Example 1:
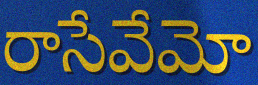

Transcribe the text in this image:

రాసేవేమో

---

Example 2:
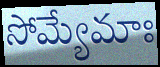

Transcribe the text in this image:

సోమ్యేమాః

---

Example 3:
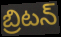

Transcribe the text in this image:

బ్రిటన్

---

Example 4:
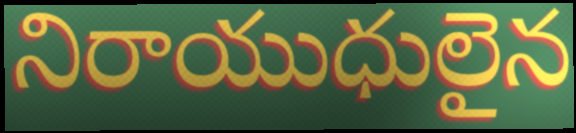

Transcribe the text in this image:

నిరాయుధులైన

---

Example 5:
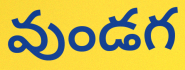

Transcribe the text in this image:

వుండగ